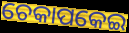
ଚେକାପକେଇ